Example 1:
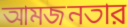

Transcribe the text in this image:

আমজনতার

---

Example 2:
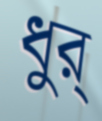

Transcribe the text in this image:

ধুর্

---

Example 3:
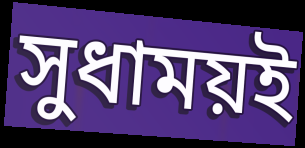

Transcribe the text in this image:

সুধাময়ই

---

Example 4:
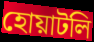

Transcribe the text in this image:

হোয়াটলি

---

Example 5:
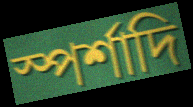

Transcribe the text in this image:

স্পর্শাদি